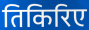
तिकिरिए